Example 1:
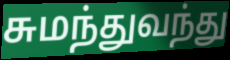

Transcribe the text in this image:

சுமந்துவந்து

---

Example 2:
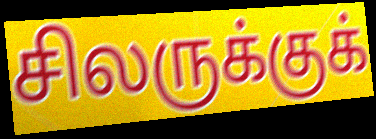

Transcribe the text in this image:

சிலருக்குக்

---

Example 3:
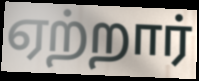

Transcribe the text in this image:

ஏற்றார்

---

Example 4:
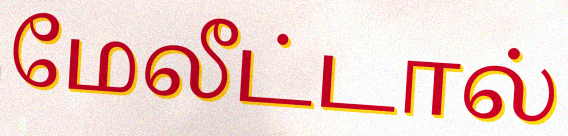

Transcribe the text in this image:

மேலீட்டால்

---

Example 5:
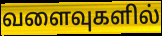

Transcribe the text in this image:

வளைவுகளில்